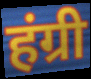
हंग्री